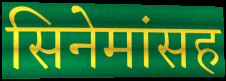
सिनेमांसह